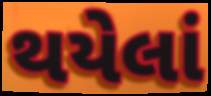
થયેલાં